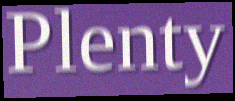
Plenty